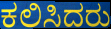
ಕಲಿಸಿದರು